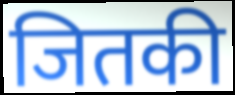
जितकी